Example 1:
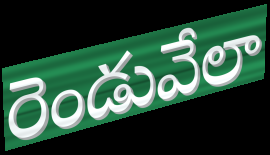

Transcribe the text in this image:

రెండువేలా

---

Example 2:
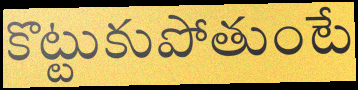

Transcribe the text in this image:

కొట్టుకుపోతుంటే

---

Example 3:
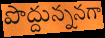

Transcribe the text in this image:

పొద్దున్ననగా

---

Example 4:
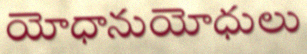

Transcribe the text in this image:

యోధానుయోధులు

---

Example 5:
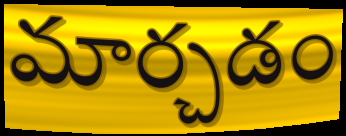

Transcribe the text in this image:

మార్చడం